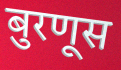
बुरणूस